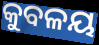
କୁବଳୟ